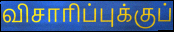
விசாரிப்புக்குப்